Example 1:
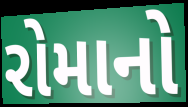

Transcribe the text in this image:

રોમાનો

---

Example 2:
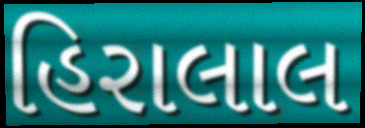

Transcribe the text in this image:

હિરાલાલ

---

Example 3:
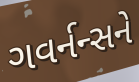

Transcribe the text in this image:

ગવર્નન્સને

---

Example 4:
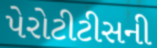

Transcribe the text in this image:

પેરોટીટીસની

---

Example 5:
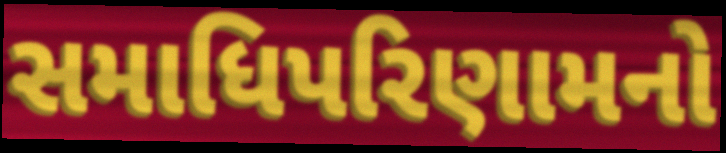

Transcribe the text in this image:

સમાધિપરિણામનો